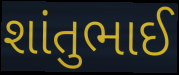
શાંતુભાઈ